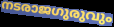
നടരാജഗുരുവും